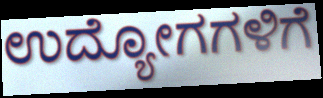
ಉದ್ಯೋಗಗಳಿಗೆ